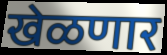
खेळणार